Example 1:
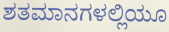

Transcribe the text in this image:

ಶತಮಾನಗಳಲ್ಲಿಯೂ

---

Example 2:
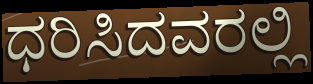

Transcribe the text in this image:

ಧರಿಸಿದವರಲ್ಲಿ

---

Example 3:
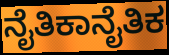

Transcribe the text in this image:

ನೈತಿಕಾನೈತಿಕ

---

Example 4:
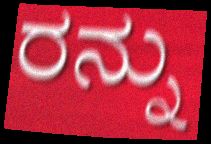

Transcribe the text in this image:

ರನ್ನು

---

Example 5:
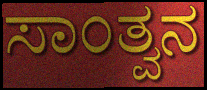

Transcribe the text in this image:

ಸಾಂತ್ವನ